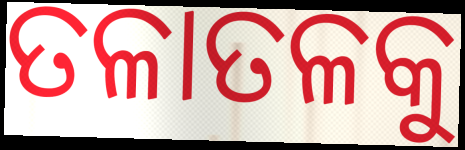
ତଳାତଳକୁ